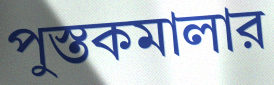
পুস্তকমালার